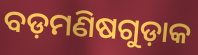
ବଡ଼ମଣିଷଗୁଡ଼ାକ